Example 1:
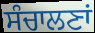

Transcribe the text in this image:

ਸੰਚਾਲਣਾਂ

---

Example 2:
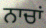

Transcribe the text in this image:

ਨਾਚਾਂ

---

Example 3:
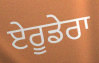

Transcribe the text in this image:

ਏਰੂਡੇਰਾ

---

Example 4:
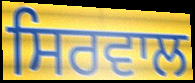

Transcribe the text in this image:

ਸਿਰਵਾਲ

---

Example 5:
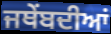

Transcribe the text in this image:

ਜਥੇਂਬਦੀਆਂ